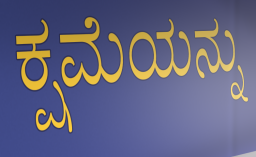
ಕ್ಷಮೆಯನ್ನು